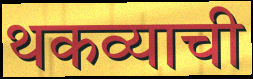
थकव्याची